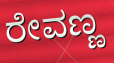
ರೇವಣ್ಣ